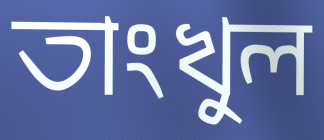
তাংখুল